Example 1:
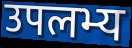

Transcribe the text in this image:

उपलभ्य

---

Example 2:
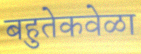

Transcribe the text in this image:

बहुतेकवेळा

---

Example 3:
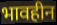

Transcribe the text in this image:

भावहीन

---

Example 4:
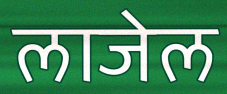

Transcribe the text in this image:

लाजेल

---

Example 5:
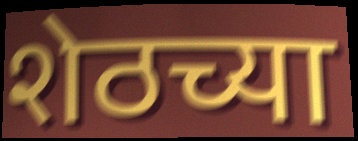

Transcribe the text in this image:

शेठच्या